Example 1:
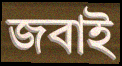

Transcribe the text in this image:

জবাই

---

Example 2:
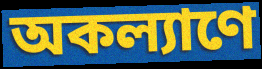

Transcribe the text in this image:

অকল্যাণে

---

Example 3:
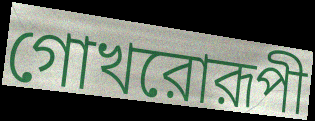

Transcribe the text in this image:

গোখরোরূপী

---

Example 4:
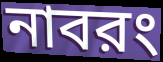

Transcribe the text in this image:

নাবরং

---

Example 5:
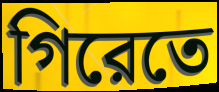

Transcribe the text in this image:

গিরেতে